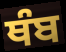
ਥੰਬ